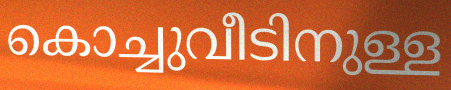
കൊച്ചുവീടിനുള്ള